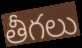
తీగలు